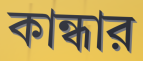
কান্ধার